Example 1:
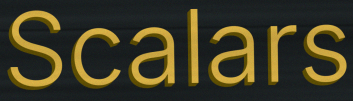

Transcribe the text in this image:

Scalars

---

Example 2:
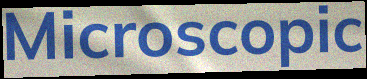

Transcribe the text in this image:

Microscopic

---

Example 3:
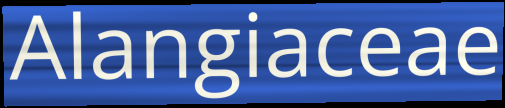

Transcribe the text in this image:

Alangiaceae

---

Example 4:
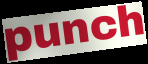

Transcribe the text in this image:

punch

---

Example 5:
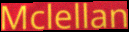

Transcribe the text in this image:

Mclellan